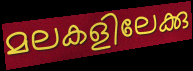
മലകളിലേക്കു